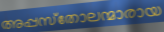
അപ്പസ്‌തോലന്മാരായ